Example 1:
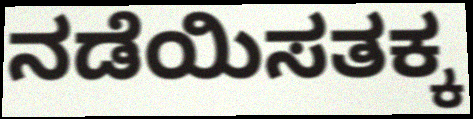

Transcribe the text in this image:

ನಡೆಯಿಸತಕ್ಕ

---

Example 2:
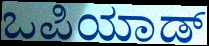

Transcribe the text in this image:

ಒಪಿಯಾಡ್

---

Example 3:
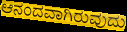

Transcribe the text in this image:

ಆನಂದವಾಗಿರುವುದು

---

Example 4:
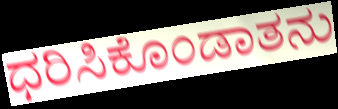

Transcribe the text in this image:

ಧರಿಸಿಕೊಂಡಾತನು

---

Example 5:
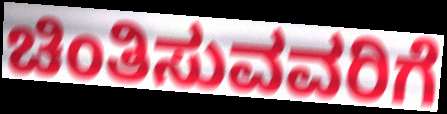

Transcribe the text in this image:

ಚಿಂತಿಸುವವರಿಗೆ